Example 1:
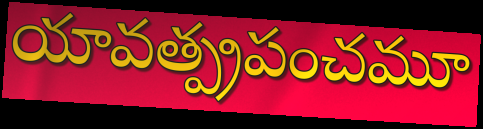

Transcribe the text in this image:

యావత్ప్రపంచమూ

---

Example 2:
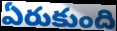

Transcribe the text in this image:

ఏరుకుంది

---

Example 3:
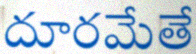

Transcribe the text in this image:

దూరమేతే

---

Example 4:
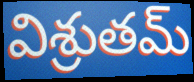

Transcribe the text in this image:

విశ్రుతమ్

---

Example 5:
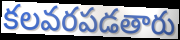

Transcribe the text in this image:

కలవరపడతారు